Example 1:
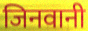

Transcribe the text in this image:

जिनवानी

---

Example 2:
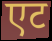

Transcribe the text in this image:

एट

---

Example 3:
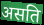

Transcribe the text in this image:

असति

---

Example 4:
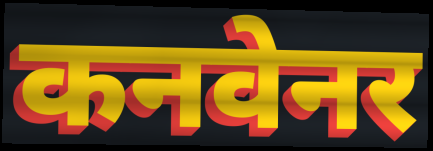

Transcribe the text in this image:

कनवेनर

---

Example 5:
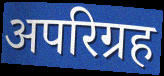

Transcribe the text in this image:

अपरिग्रह